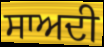
ਸਾਅਦੀ